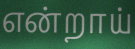
என்றாய்